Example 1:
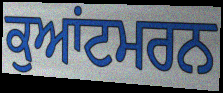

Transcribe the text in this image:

ਕੁਆਂਟਮਰਨ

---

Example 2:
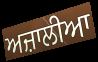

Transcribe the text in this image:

ਅਜ਼ਾਲੀਆ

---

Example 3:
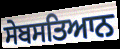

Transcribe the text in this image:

ਸੇਬਸਤਿਆਨ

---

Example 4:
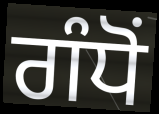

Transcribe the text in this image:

ਗੰਧੋਂ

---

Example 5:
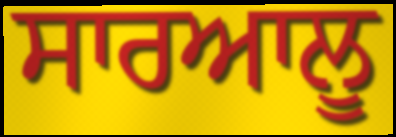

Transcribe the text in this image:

ਸਾਰਆਲੂ